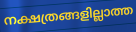
നക്ഷത്രങ്ങളില്ലാത്ത